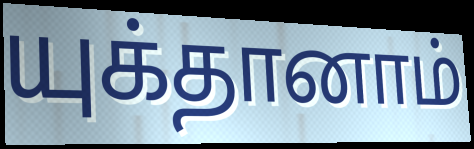
யுக்தானாம்